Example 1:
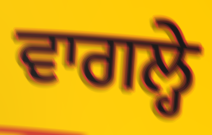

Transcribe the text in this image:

ਵਾਗਲ੍ਹੇ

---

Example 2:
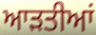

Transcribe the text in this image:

ਆਡ਼ਤੀਆਂ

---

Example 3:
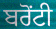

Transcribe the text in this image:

ਬਰੋਂਟੀ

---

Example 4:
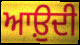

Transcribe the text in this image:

ਆਉ਼ਦੀ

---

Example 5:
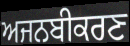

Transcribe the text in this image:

ਅਜਨਬੀਕਰਣ